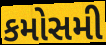
કમોસમી